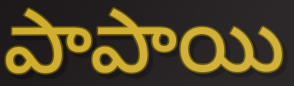
పాపాయి